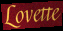
Lovette